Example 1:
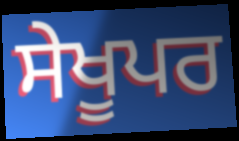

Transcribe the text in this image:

ਸੇਖੂਪਰ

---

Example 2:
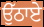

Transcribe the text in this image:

ਉੱਠਾਏ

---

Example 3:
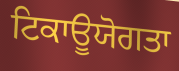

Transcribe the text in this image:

ਟਿਕਾਊਯੋਗਤਾ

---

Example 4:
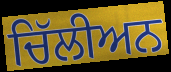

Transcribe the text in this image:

ਚਿੱਲੀਅਨ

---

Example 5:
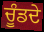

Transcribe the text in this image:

ਚੂੰਡਦੇ